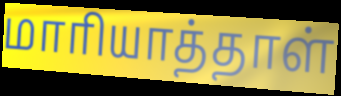
மாரியாத்தாள்